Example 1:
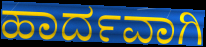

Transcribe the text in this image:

ಹಾರ್ದವಾಗಿ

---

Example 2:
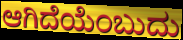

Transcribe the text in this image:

ಆಗಿದೆಯೆಂಬುದು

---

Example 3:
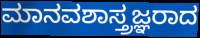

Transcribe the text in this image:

ಮಾನವಶಾಸ್ತ್ರಜ್ಞರಾದ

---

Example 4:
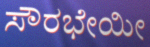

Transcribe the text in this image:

ಸೌರಭೇಯೀ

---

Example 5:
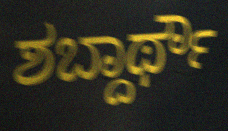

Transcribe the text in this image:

ಶಬ್ದಾರ್ಥೌ